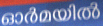
ഓർമയിൽ